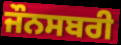
ਜੌਨਸਬਰੀ